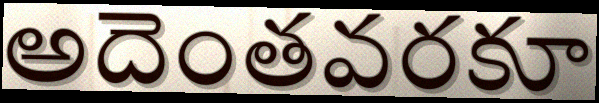
అదెంతవరకూ